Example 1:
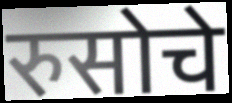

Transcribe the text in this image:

रुसोचे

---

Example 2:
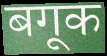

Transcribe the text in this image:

बगूक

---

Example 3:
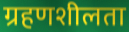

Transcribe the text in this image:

ग्रहणशीलता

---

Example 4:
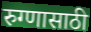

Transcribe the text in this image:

रुग्णासाठी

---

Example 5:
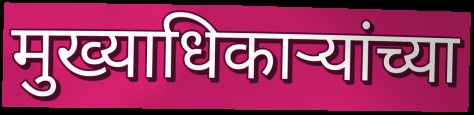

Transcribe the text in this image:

मुख्याधिकाऱ्यांच्या